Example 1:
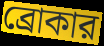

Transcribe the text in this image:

ব্রোকার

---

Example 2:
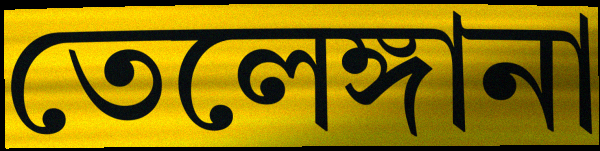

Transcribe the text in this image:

তেলেঙ্গানা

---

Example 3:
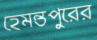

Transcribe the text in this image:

হেমন্তপুরের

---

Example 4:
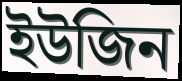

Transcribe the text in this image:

ইউজিন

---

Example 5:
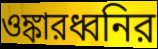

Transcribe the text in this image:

ওঙ্কারধ্বনির